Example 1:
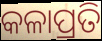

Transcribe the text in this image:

କଳାପ୍ରତି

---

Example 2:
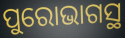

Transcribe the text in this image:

ପୁରୋଭାଗସ୍ଥ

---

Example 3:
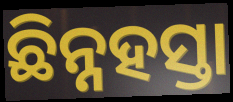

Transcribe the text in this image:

ଛିନ୍ନହସ୍ତା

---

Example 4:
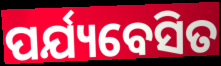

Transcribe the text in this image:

ପର୍ଯ୍ୟବେସିତ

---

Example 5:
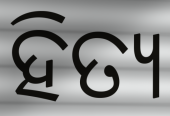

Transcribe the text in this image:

ହିତ୍ୟ